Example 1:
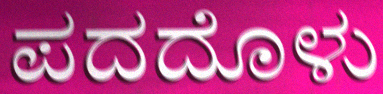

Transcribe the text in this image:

ಪದದೊಳು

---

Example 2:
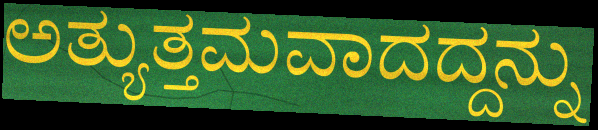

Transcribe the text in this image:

ಅತ್ಯುತ್ತಮವಾದದ್ದನ್ನು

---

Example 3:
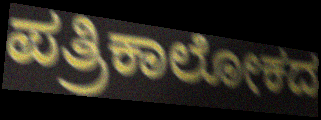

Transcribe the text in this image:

ಪತ್ರಿಕಾಲೋಕದ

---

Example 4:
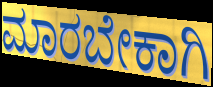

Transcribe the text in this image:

ಮಾರಬೇಕಾಗಿ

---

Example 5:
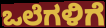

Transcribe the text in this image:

ಒಲೆಗಳಿಗೆ